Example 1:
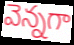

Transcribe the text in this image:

వెన్నగా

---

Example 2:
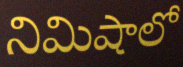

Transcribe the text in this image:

నిమిషాలో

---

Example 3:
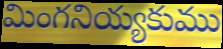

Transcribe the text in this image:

మింగనియ్యకుము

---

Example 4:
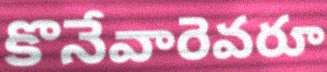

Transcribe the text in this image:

కొనేవారెవరూ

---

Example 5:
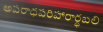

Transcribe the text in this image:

అపరాధపరిహారార్థబలి